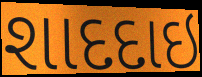
શાદદાઇ